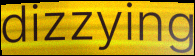
dizzying